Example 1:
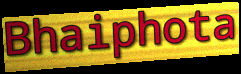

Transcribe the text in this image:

Bhaiphota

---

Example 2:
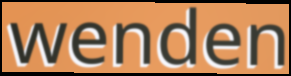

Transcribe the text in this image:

wenden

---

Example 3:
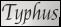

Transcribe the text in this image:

Typhus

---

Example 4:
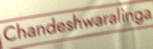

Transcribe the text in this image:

Chandeshwaralinga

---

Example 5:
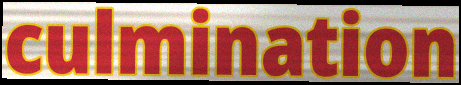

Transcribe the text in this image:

culmination